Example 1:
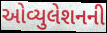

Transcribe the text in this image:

ઓવ્યુલેશનની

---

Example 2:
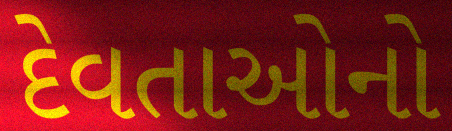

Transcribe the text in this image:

દેવતાઓનો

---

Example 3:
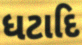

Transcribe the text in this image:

ધટાદિ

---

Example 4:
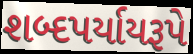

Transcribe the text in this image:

શબ્દપર્યાયરૂપે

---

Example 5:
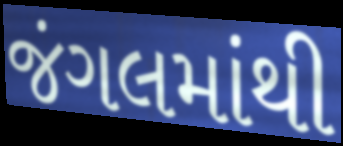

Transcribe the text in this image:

જંગલમાંથી